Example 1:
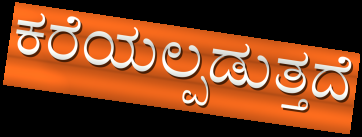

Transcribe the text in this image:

ಕರೆಯಲ್ಪಡುತ್ತದೆ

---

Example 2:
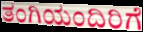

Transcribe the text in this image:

ತಂಗಿಯಂದಿರಿಗೆ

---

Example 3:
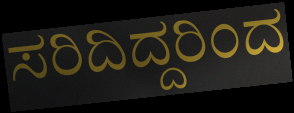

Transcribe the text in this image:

ಸರಿದಿದ್ದರಿಂದ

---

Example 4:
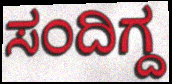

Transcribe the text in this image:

ಸಂದಿಗ್ದ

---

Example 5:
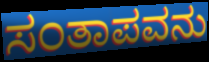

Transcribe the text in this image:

ಸಂತಾಪವನು